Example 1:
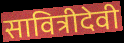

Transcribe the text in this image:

सावित्रीदेवी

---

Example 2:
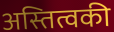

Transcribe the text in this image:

अस्तित्वकी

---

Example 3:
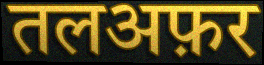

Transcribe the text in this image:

तलअफ़र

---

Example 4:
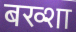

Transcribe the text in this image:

बख्शा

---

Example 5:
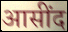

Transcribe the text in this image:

आसींद